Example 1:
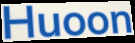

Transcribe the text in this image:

Huoon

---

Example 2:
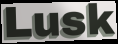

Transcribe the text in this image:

Lusk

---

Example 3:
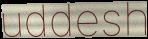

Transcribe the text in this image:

uddesh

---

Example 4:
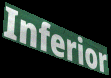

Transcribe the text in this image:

Inferior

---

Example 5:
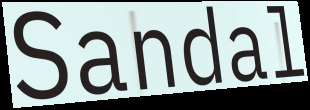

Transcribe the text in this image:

Sandal